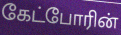
கேட்போரின்